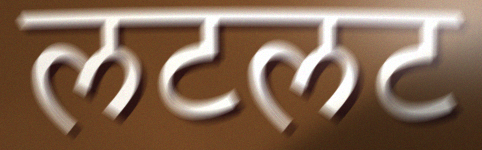
लटलट